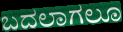
ಬದಲಾಗಲೂ